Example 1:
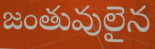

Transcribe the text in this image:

జంతువులైన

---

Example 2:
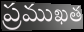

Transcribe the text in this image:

ప్రముఖత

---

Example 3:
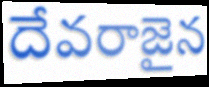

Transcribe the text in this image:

దేవరాజైన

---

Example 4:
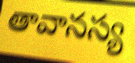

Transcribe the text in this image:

తావానస్య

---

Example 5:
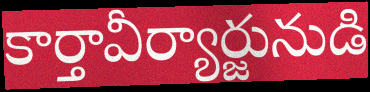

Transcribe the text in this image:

కార్తావీర్యార్జునుడి